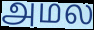
அமல